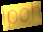
Ipoh